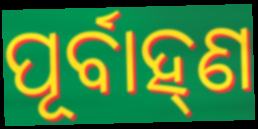
ପୂର୍ବାହ୍‌ଣ